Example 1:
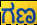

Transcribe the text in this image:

ಗಣ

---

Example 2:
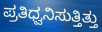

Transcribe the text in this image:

ಪ್ರತಿಧ್ವನಿಸುತ್ತಿತ್ತು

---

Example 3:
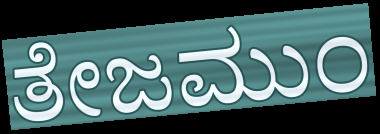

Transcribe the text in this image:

ತೇಜಮುಂ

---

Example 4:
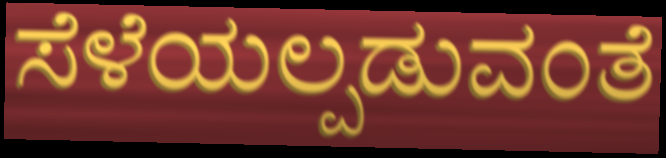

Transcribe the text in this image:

ಸೆಳೆಯಲ್ಪಡುವಂತೆ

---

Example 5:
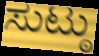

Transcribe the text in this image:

ಸುಟ್ಠು